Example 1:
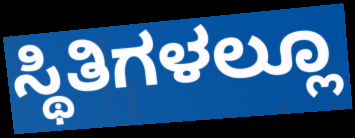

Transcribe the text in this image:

ಸ್ಥಿತಿಗಳಲ್ಲೂ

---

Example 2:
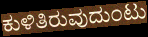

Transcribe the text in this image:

ಕುಳಿತಿರುವುದುಂಟು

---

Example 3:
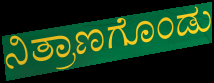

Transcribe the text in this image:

ನಿತ್ರಾಣಗೊಂಡು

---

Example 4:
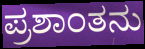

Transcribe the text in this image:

ಪ್ರಶಾಂತನು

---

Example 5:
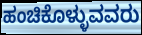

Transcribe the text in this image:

ಹಂಚಿಕೊಳ್ಳುವವರು